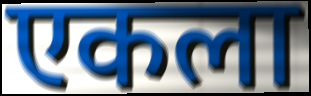
एकला